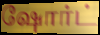
ஷோர்ட்